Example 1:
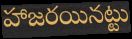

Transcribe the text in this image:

హాజరయినట్టు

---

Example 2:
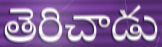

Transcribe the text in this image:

తెరిచాడు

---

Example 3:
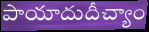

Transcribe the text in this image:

పాయాదుదీచ్యాం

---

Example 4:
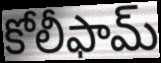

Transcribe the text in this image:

కోలీఫామ్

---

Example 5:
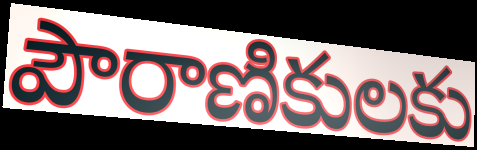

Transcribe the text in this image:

పౌరాణికులకు